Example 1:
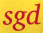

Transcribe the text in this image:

sgd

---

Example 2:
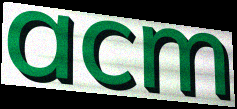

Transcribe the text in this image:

acm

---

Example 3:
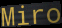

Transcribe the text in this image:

Miro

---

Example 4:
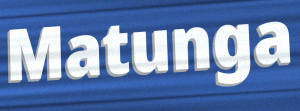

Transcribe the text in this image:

Matunga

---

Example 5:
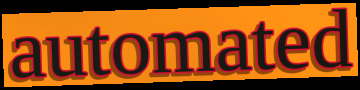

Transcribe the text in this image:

automated